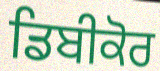
ਡਿਬੀਕੋਰ